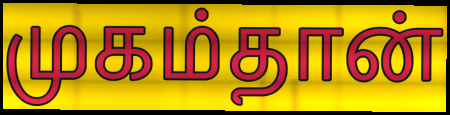
முகம்தான்